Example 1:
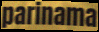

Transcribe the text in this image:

parinama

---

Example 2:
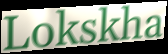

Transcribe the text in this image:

Lokskha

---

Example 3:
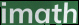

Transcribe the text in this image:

imath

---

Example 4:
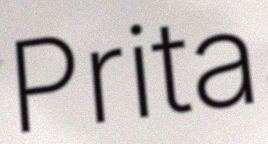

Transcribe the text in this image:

Prita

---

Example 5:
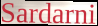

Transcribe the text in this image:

Sardarni